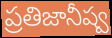
ప్రతిజానీష్వ